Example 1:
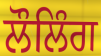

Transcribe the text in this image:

ਲੌਲਿੰਗ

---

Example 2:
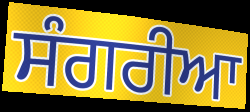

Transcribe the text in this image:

ਸੰਗਰੀਆ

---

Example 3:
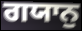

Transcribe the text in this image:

ਗਯਾਨੁ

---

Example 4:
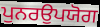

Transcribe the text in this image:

ਪੁਨਰਉਪਯੋਗ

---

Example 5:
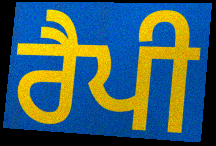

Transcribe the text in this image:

ਰੈਪੀ